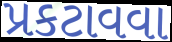
પ્રકટાવવા